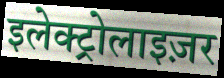
इलेक्ट्रोलाइज़र